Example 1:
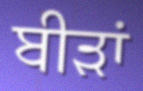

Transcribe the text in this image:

ਬੀੜਾਂ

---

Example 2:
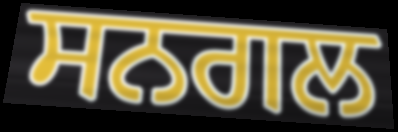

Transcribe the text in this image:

ਸਨਗਲ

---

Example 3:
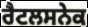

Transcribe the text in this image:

ਰੈਟਲਸਨੇਕ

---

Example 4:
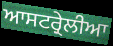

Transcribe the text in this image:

ਆਸਟਰ੍ਰੇਲੀਆ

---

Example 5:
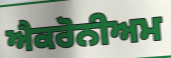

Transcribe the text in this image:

ਐਕਰੋਨੀਅਮ